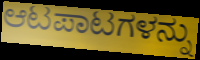
ಆಟಪಾಟಗಳನ್ನು